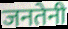
जनतेनी